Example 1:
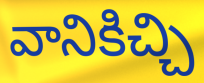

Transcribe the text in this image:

వానికిచ్చి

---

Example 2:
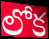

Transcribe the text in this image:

లోక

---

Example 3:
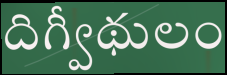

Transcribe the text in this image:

దిగ్వీథులం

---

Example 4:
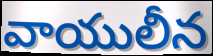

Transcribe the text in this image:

వాయులీన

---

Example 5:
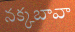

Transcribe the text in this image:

నక్కబావా